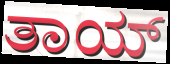
ತಾಯ್